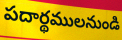
పదార్థములనుండి